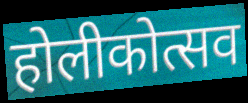
होलीकोत्सव